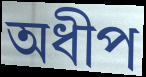
অধীপ